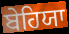
ਬੇਹਿਯਾ